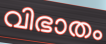
വിഭാതം